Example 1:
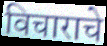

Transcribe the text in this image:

विचाराचे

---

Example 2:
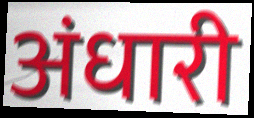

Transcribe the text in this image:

अंधारी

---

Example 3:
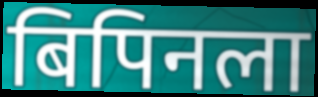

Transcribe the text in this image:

बिपिनला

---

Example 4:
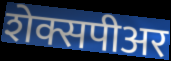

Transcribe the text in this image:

शेक्सपीअर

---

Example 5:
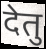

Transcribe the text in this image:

देतु